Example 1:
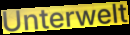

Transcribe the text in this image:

Unterwelt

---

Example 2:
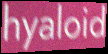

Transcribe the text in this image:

hyaloid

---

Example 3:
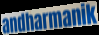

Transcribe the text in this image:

andharmanik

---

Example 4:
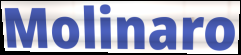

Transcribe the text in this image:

Molinaro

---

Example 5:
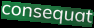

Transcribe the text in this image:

consequat